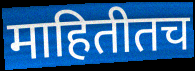
माहितीतच